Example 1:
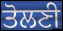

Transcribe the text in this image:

ਤੋਲਣੀ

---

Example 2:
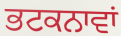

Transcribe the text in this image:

ਭਟਕਨਾਵਾਂ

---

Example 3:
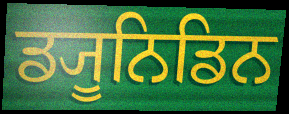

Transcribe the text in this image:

ਡ੍ਯੂਨਿਡਿਨ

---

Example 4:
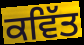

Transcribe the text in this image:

ਕਵਿੱਤ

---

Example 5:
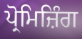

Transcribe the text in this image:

ਪ੍ਰੋਮਿਜ਼ਿੰਗ